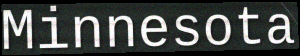
Minnesota